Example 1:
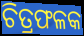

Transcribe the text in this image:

ଚିତ୍ରଫଳକ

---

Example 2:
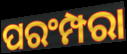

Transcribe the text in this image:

ପରଂମ୍ପରା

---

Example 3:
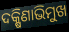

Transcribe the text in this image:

ଦକ୍ଷିଣାଭିମୁଖ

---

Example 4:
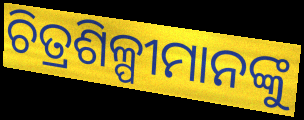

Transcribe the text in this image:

ଚିତ୍ରଶିଳ୍ପୀମାନଙ୍କୁ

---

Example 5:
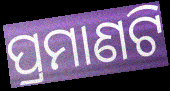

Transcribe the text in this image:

ପ୍ରମାଣଟି